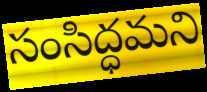
సంసిద్ధమని